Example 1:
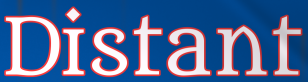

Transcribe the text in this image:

Distant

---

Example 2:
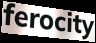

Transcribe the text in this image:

ferocity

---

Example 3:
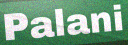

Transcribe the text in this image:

Palani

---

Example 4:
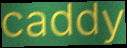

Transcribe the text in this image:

caddy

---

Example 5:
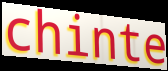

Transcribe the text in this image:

chinte